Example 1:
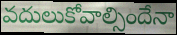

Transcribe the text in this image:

వదులుకోవాల్సిందేనా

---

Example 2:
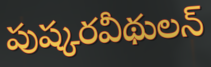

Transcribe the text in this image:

పుష్కరవీథులన్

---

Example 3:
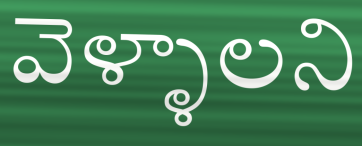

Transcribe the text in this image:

వెళ్ళాలని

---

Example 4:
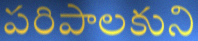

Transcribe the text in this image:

పరిపాలకుని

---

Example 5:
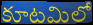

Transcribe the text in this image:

కూటమిలో